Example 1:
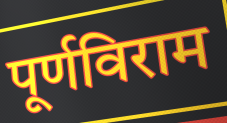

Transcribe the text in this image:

पूर्णविराम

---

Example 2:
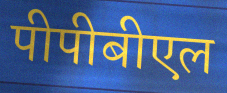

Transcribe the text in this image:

पीपीबीएल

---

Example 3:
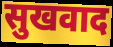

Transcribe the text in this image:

सुखवाद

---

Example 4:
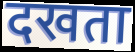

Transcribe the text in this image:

दखता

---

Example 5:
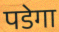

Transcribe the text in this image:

पडेगा